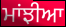
ਮਾਂਝੀਆ